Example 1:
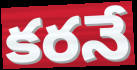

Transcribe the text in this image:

కరనే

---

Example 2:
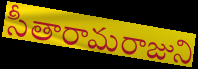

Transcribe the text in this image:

సీతారామరాజుని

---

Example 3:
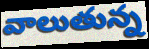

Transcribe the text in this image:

వాలుతున్న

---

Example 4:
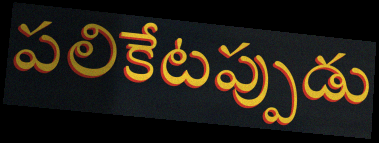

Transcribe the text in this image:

పలికేటప్పుడు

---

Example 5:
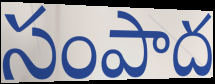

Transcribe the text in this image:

సంపాద